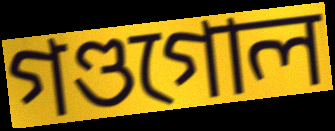
গণ্ডগোল